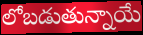
లోబడుతున్నాయే